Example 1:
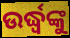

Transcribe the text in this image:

ଉର୍ଦ୍ଧ୍ୱଙ୍କୁ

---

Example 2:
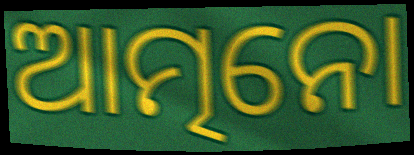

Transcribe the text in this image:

ଆତ୍ମନୋ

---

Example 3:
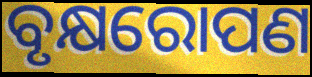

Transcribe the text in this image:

ବୃକ୍ଷରୋପଣ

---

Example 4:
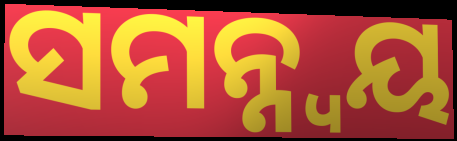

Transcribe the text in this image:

ସମନ୍ନ୍ୱୟ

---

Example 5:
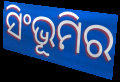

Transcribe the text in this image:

ସିଂଭୂମିର